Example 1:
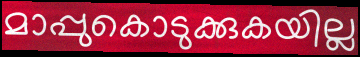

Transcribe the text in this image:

മാപ്പുകൊടുക്കുകയില്ല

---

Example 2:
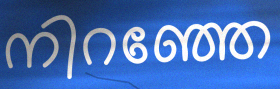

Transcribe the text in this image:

നിറഞ്ഞേ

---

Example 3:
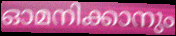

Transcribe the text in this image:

ഓമനിക്കാനും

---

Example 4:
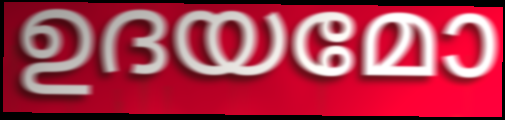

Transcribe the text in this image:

ഉദയമോ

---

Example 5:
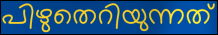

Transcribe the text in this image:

പിഴുതെറിയുന്നത്